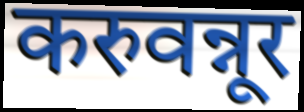
करुवन्नूर